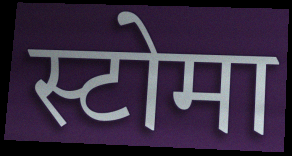
स्टोमा